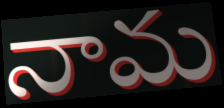
నామ